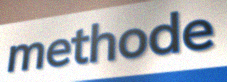
methode